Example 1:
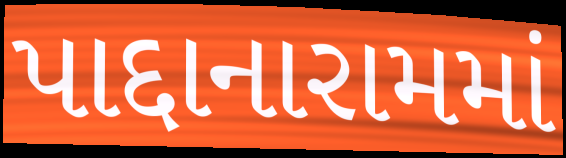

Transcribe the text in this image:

પાદ્દાનારામમાં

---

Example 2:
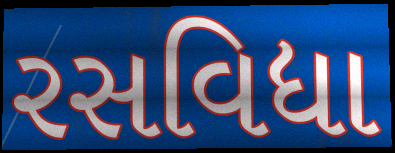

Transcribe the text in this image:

રસવિદ્યા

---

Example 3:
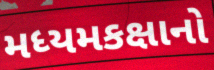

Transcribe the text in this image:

મધ્યમકક્ષાનો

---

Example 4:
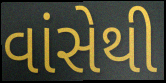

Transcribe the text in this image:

વાંસેથી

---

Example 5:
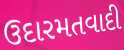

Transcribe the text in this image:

ઉદારમતવાદી